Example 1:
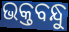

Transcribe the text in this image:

ଭକ୍ତବନ୍ଧୁ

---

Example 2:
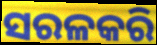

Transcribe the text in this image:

ସରଳକରି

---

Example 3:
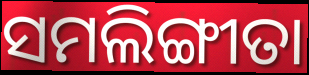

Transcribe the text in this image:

ସମଲିଙ୍ଗୀତା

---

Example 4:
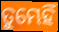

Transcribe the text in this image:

ତୁମ୍ଭେହିଁ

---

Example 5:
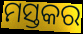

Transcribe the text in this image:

ମସ୍ତକର